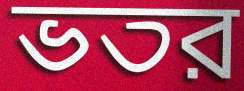
ভতর